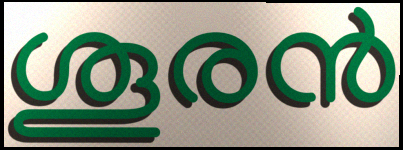
ശൂരൻ